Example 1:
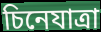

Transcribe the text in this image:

চিনেযাত্ৰা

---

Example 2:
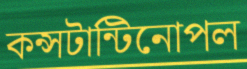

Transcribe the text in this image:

কন্সটান্টিনোপল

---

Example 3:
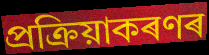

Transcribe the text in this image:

প্ৰক্ৰিয়াকৰণৰ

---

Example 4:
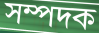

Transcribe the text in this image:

সম্পদক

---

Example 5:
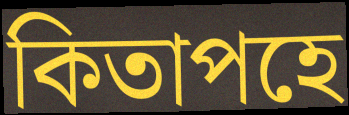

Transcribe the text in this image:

কিতাপহে